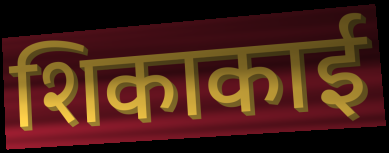
शिकाकाई